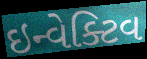
ઇન્વેક્ટિવ